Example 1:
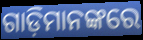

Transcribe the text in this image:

ଗାଡ଼ିମାନଙ୍କରେ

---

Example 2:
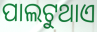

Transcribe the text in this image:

ପାଲଟୁଥାଏ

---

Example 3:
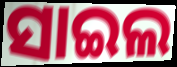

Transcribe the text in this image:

ସାଇଲ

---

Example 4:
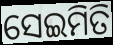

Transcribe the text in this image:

ସେଇମିତି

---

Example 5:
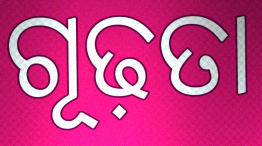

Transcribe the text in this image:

ଗୂଢ଼ତା